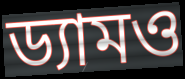
ড্যামও